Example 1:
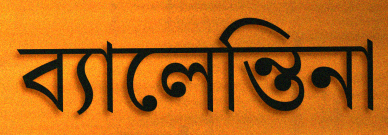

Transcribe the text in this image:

ব্যালেন্তিনা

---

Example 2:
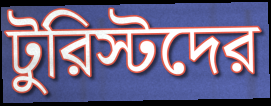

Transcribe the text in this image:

টুরিস্টদের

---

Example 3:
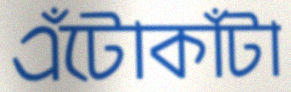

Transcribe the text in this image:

এঁটোকাঁটা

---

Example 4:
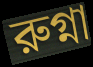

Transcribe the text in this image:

রুগ্না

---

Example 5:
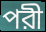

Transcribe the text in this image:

পরী